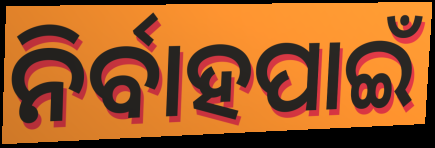
ନିର୍ବାହପାଇଁ